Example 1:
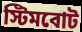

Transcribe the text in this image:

স্টিমবোট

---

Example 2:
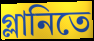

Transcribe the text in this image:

গ্লানিতে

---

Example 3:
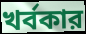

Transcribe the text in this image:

খর্বকার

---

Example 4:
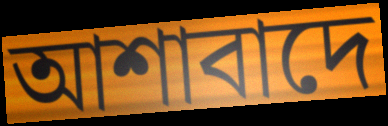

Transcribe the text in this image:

আশাবাদে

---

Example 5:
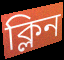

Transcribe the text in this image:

ক্লিন